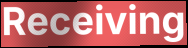
Receiving